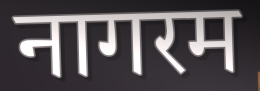
नागरम